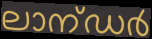
ലാന്ഡർ